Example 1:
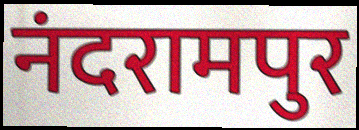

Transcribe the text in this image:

नंदरामपुर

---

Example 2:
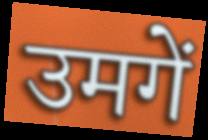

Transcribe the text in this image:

उमगें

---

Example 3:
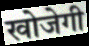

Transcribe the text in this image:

खोजेगी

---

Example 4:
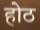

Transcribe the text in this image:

होठ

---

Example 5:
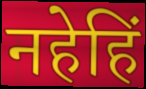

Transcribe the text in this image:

नहेहिं